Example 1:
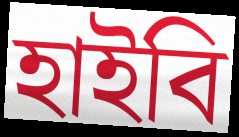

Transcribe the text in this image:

হাইবি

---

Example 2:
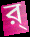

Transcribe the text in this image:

র্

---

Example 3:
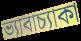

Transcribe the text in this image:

ভ্যাবাচ্যাকা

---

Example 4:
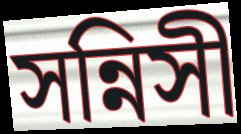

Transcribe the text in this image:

সন্নিসী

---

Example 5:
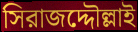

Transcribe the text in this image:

সিরাজদ্দৌল্লাই